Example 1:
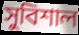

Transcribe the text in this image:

সুবিশাল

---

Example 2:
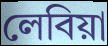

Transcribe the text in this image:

লেবিয়া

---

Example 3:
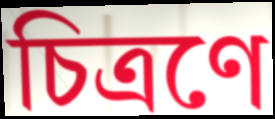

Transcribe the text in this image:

চিত্ৰণে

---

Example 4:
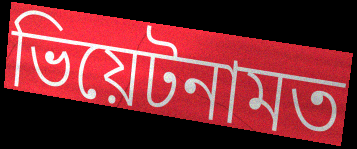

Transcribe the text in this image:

ভিয়েটনামত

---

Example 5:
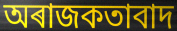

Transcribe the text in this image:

অৰাজকতাবাদ